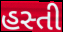
હસ્તી